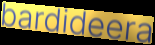
bardideera